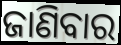
ଜାଣିବାର